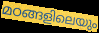
മഠങ്ങളിലെയും